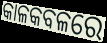
କାଳକବଳରେ